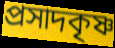
প্রসাদকৃষ্ণ